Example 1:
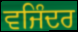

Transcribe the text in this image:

ਵਜਿੰਦਰ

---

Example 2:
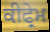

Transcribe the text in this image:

ਕੀਫ੍ਰੇਮ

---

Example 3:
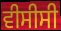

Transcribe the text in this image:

ਵੀਸੀਸੀ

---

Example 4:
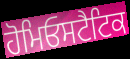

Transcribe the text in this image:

ਹੋਮਿਓਸਟੈਟਿਕ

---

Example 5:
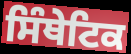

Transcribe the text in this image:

ਸਿੰਥੇਟਿਕ